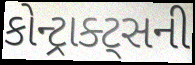
કોન્ટ્રાક્ટ્સની